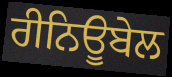
ਰੀਨਿਊਬੇਲ